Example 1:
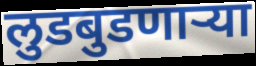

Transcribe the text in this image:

लुडबुडणाऱ्या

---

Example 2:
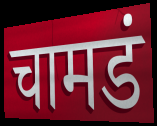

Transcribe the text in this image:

चामडं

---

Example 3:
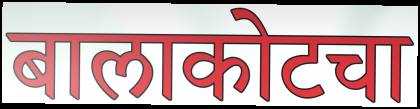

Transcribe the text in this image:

बालाकोटचा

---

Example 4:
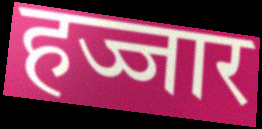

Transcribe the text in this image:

हज्जार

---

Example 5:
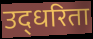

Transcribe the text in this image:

उद्धरिता